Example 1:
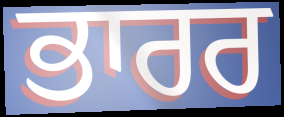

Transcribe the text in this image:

ਭਾਰਰ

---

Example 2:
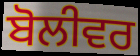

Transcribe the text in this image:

ਬੋਲੀਵਰ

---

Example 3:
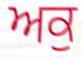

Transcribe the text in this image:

ਅਕੁ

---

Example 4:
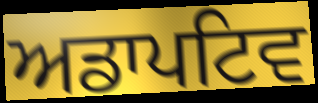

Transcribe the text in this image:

ਅਡਾਪਟਿਵ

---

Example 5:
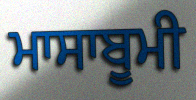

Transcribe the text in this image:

ਮਾਸਾਬੂਮੀ